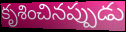
కృశించినప్పుడు